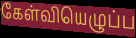
கேள்வியெழுப்ப